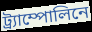
ট্র্যাম্পোলিনে